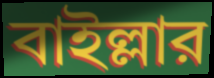
বাইল্লার